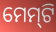
ମେମ୍‍ଟି